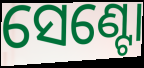
ସେଣ୍ଟୋ